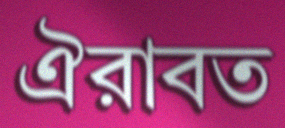
ঐরাবত